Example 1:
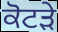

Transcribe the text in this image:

ਕੋਟੜੇ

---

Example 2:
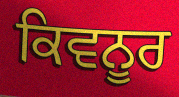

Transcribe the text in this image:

ਕਿਵਨੂਰ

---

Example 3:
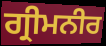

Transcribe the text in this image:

ਗ੍ਰੀਮਨੀਰ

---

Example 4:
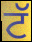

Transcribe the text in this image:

ਟੱ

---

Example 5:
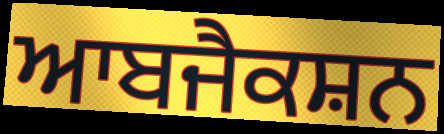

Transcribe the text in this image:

ਆਬਜੈਕਸ਼ਨ